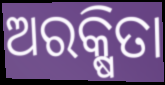
ଅରକ୍ଷିତା